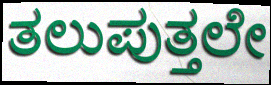
ತಲುಪುತ್ತಲೇ